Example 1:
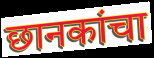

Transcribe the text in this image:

छानकांचा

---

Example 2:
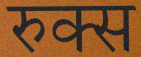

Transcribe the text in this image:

रुक्स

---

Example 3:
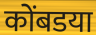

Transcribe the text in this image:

कोंबडया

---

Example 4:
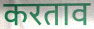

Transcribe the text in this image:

करताव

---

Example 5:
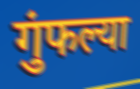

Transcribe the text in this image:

गुंफल्या